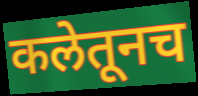
कलेतूनच